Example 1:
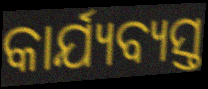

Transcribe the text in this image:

କାର୍ଯ୍ୟବ୍ୟସ୍ତ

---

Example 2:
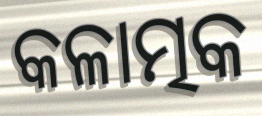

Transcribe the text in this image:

କଳାତ୍ମକ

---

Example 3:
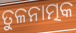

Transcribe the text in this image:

ତୁଳନାତ୍ମକ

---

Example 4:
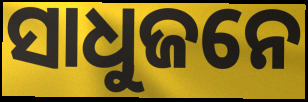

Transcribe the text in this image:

ସାଧୁଜନେ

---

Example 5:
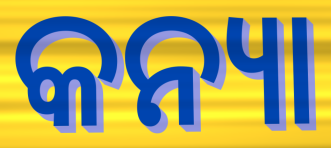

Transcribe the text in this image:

କନ୍ୟା